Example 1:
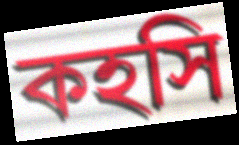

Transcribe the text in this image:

কহসি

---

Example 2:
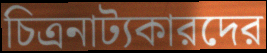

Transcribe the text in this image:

চিত্রনাট্যকারদের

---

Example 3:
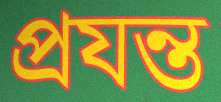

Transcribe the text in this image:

প্রযন্ত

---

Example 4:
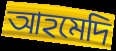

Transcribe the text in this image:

আহমেদি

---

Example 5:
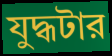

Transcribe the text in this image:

যুদ্ধটার